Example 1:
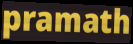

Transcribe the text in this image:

pramath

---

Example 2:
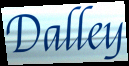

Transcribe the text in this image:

Dalley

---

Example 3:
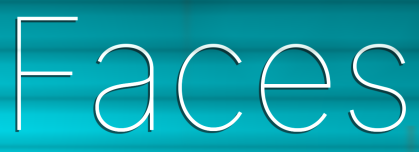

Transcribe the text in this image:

Faces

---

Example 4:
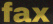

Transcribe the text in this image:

fax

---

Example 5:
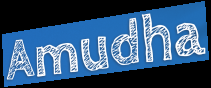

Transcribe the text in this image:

Amudha